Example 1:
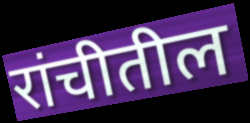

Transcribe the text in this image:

रांचीतील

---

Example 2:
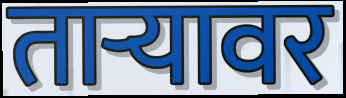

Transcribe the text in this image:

ताऱ्यावर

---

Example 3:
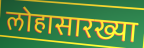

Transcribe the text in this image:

लोहासारख्या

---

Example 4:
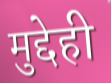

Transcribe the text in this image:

मुद्देही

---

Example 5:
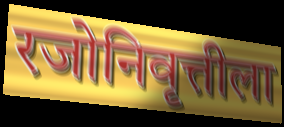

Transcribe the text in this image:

रजोनिवृत्तीला